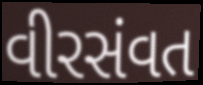
વીરસંવત